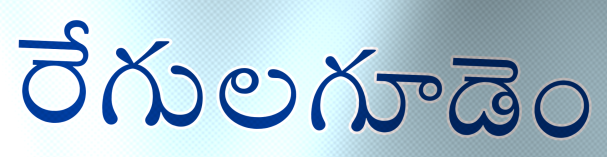
రేగులగూడెం